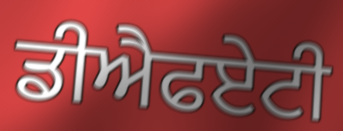
ਡੀਐਫਏਟੀ